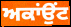
ਅਕਾਂਉਂਟ